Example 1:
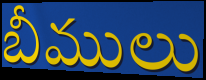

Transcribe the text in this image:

బీములు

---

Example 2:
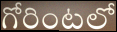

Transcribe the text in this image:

గోరింటలో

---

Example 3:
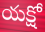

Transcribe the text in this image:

యక్షో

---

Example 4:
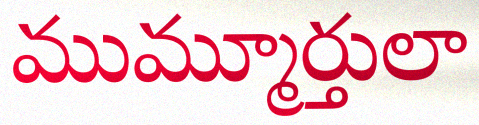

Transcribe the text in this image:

ముమ్మూర్తులా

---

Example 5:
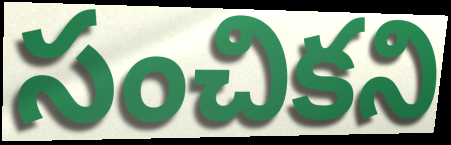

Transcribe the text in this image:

సంచికని